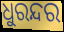
ଧୁରନ୍ଦର